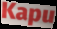
Kapu